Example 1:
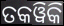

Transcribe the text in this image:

ତକୱିକି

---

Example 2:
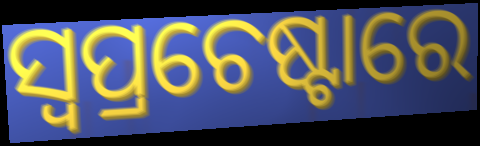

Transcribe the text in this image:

ସ୍ଵପ୍ରଚେଷ୍ଟାରେ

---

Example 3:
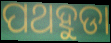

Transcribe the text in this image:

ପଥହୁଡା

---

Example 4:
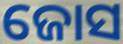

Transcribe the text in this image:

ଜୋସ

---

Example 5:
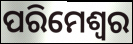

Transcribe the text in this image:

ପରିମେଶ୍ୱର